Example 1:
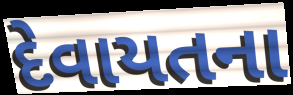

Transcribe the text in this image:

દેવાયતના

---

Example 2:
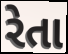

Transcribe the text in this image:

રેતા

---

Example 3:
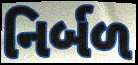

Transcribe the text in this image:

નિર્બળ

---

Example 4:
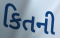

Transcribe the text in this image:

કિતની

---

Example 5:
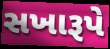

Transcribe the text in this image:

સખારૂપે